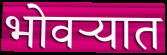
भोवऱ्यात